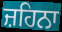
ਜ਼ਹਿਨਾ